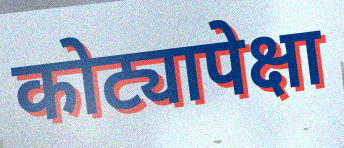
कोट्यापेक्षा